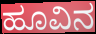
ಹೂವಿನ